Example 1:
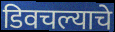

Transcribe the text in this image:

डिवचल्याचे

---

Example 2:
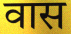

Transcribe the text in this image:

वास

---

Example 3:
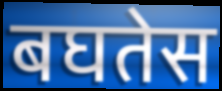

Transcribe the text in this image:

बघतेस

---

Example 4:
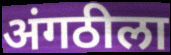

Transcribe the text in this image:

अंगठीला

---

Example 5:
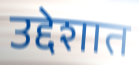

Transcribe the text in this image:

उद्देशात